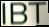
IBT